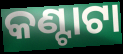
କଣ୍ଟାଟା